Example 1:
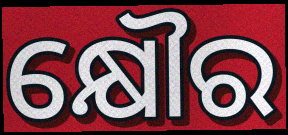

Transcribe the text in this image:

କ୍ଷୌର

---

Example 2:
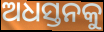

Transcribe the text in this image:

ଅଧସ୍ତନକୁ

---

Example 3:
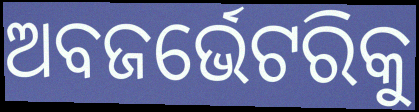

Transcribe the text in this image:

ଅବଜର୍ଭେଟରିକୁ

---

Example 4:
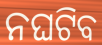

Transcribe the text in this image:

ନଘଟିବ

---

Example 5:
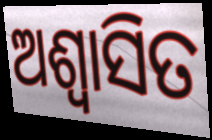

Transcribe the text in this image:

ଅଶ୍ୱାସିତ